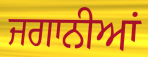
ਜਗਾਨੀਆਂ